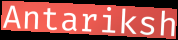
Antariksh